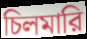
চিলমারি